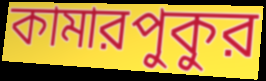
কামারপুকুর